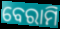
ବେରାମି